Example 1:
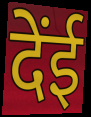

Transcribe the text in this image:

देंई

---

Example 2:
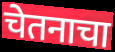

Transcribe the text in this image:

चेतनाचा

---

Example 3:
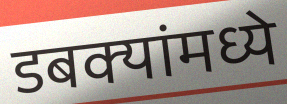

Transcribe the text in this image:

डबक्यांमध्ये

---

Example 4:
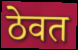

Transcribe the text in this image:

ठेवत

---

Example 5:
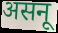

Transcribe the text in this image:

असनू